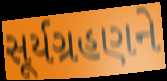
સૂર્યગ્રહણને